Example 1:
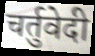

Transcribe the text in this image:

चर्तुवेदी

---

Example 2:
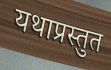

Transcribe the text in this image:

यथाप्रस्तुत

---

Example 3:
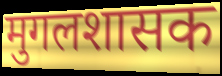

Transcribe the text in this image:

मुगलशासक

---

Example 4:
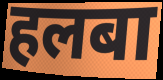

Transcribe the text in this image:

हलबा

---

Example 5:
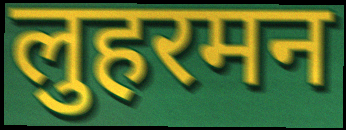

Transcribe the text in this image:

लुहरमन